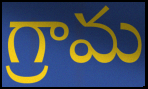
గ్రామ